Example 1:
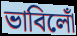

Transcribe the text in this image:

ভাবিলোঁ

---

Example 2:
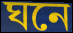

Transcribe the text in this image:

ঘনে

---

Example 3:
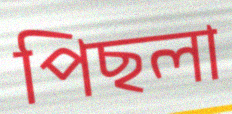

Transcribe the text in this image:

পিছলা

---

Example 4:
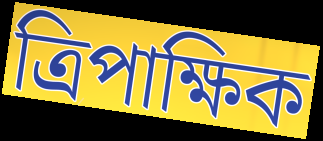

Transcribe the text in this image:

ত্ৰিপাক্ষিক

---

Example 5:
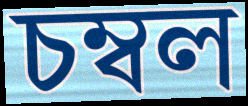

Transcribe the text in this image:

চম্বল